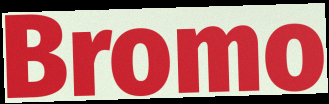
Bromo